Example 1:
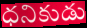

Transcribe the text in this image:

ధనికుడు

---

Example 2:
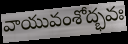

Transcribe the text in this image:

వాయువంశోద్భవః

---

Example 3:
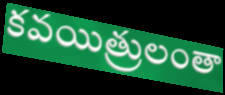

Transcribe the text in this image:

కవయిత్రులంతా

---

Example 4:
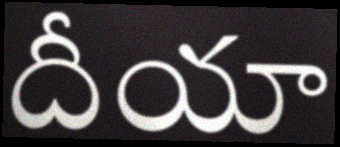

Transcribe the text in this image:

దీయా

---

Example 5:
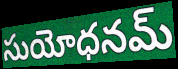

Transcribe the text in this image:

సుయోధనమ్